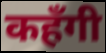
कहँगी